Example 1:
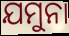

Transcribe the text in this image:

ଯମୁନା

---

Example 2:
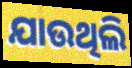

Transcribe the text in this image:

ଯାଉଥିଲି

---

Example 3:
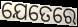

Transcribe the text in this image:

ଯେତେରେ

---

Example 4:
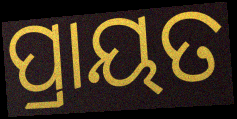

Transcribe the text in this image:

ପ୍ରାୟତ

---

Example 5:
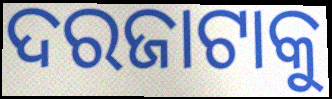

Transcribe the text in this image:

ଦରଜାଟାକୁ